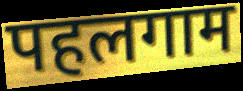
पहलगाम